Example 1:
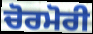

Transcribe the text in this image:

ਚੋਰਮੋਰੀ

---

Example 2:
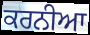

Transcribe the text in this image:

ਕਰਨੀਆ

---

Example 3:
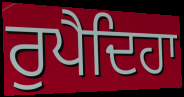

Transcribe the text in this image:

ਰੁਪੈਦਿਹਾ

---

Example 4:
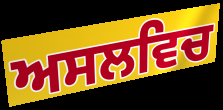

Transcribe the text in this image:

ਅਸਲਵਿਚ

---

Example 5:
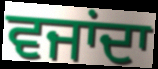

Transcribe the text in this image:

ਵਜਾਂਦਾ